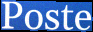
Poste